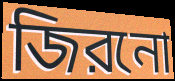
জিরনো